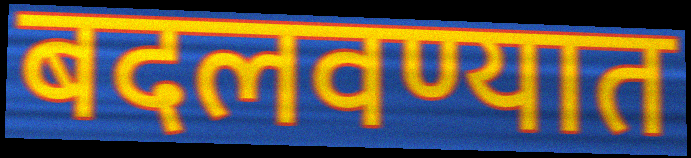
बदलवण्यात